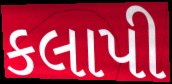
કલાપી